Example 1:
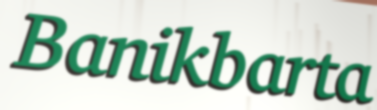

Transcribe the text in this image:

Banikbarta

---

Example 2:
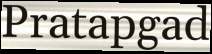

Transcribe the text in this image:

Pratapgad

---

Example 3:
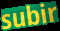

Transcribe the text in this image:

subir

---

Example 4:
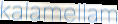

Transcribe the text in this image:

kalamellam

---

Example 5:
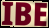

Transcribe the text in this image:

IBE